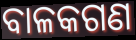
ବାଳକଗଣ